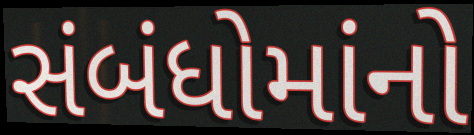
સંબંધોમાંનો